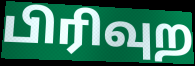
பிரிவுற